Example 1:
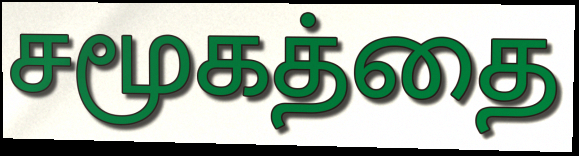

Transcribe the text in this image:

சமூகத்தை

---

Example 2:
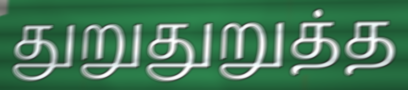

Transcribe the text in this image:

துறுதுறுத்த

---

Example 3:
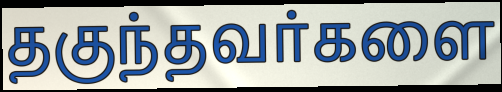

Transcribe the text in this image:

தகுந்தவர்களை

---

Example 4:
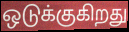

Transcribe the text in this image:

ஒடுக்குகிறது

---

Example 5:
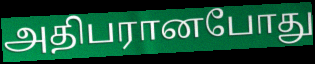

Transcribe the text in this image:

அதிபரானபோது